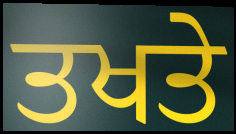
ਤਖਤੇ